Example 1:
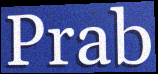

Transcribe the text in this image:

Prab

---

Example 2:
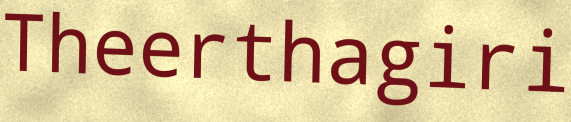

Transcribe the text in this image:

Theerthagiri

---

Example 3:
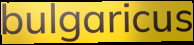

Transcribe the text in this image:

bulgaricus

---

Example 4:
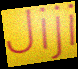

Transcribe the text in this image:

Jiji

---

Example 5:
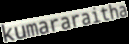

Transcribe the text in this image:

kumararaitha